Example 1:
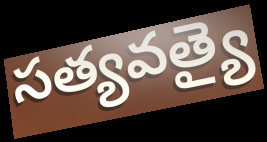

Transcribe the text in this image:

సత్యవత్యై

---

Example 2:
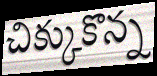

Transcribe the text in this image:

చిక్కుకొన్న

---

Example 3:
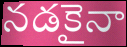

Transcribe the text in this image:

నడకైనా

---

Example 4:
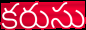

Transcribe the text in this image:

కరుసు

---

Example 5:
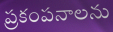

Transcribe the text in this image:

ప్రకంపనాలను